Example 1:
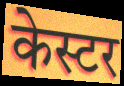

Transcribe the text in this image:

केस्टर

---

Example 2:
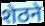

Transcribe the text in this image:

शेठने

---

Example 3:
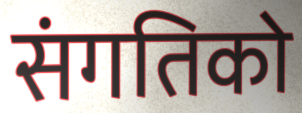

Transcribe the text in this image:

संगतिको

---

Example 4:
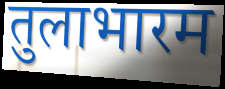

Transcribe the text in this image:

तुलाभारम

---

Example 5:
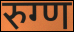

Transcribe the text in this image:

रुग्ण